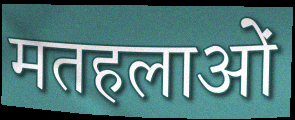
मतहलाओं